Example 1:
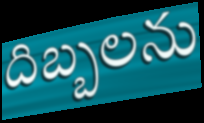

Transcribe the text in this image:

దిబ్బలను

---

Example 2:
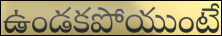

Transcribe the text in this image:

ఉండకపోయుంటే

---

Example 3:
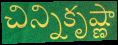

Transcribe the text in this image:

చిన్నికృష్ణా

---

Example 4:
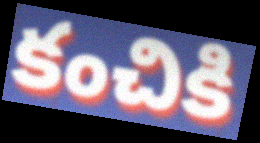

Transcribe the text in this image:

కంచికి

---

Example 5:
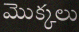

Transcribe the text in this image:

మొక్కలు